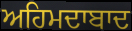
ਅਹਿਮਦਾਬਾਦ